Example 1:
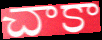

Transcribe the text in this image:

చాకా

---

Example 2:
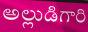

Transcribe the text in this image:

అల్లుడిగారి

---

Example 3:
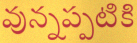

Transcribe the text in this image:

వున్నప్పటికి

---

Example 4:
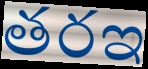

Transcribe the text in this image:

తరఇ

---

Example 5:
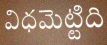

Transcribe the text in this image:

విధమెట్టిది